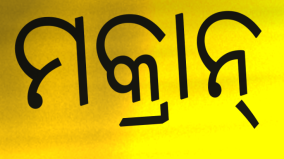
ମକ୍ରାନ୍